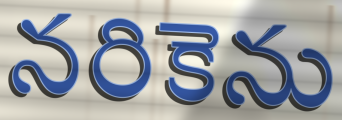
నరికెను